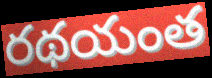
రథయంత